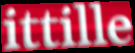
ittille